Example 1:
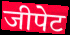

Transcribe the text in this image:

जीपेट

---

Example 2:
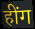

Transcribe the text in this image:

हींग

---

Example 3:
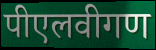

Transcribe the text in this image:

पीएलवीगण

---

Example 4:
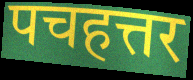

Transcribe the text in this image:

पचहत्तर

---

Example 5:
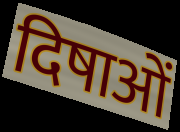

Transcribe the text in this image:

दिषाओं